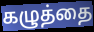
கழுத்தை